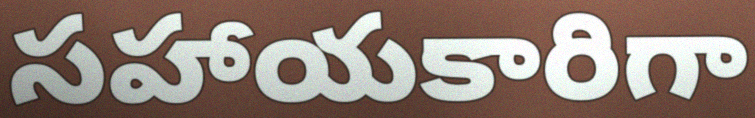
సహాయకారిగా